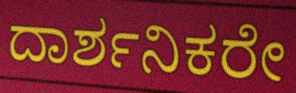
ದಾರ್ಶನಿಕರೇ